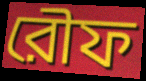
রৌফ